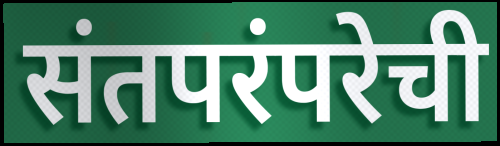
संतपरंपरेची